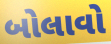
બોલાવો